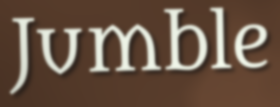
Jumble